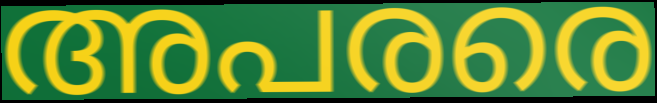
അപരരെ